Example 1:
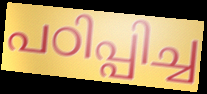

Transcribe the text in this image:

പഠിപ്പിച്ച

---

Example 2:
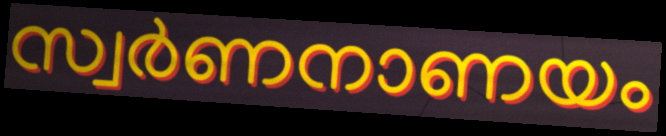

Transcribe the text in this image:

സ്വർണനാണയം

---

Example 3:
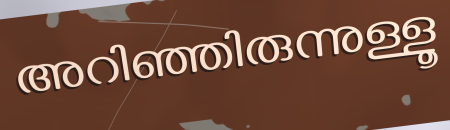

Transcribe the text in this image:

അറിഞ്ഞിരുന്നുള്ളൂ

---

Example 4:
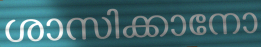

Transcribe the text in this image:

ശാസിക്കാനോ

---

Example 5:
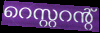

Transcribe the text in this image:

റെസ്റ്ററന്റ്